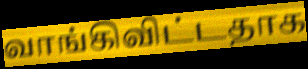
வாங்கிவிட்டதாக